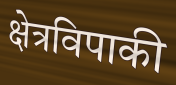
क्षेत्रविपाकी